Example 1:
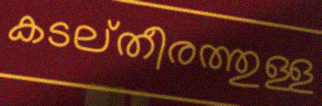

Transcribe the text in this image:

കടല്തീരത്തുള്ള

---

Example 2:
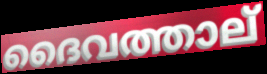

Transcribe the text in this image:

ദൈവത്താല്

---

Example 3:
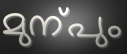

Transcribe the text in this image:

മുന്പും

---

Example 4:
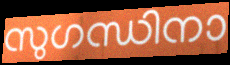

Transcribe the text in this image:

സുഗന്ധിനാ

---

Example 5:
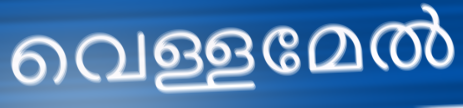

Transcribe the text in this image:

വെള്ളമേൽ